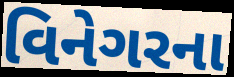
વિનેગરના